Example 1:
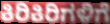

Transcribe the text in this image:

ಕಿರಿಕಿರಿಗಳಿಗೆ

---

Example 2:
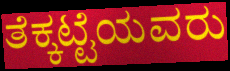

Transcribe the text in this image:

ತೆಕ್ಕಟ್ಟೆಯವರು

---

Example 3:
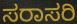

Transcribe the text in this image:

ಸರಾಸರಿ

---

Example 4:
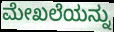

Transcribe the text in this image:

ಮೇಖಲೆಯನ್ನು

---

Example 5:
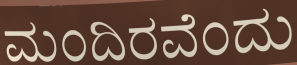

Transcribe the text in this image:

ಮಂದಿರವೆಂದು